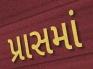
પ્રાસમાં